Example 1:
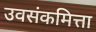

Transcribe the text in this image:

उवसंकमित्ता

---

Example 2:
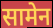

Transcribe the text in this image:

सामेन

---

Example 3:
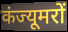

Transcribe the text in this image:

कंज्यूमरों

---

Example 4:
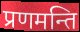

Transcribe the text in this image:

प्रणमन्ति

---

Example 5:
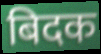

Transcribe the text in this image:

बिदक